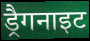
ड्रैगनाइट